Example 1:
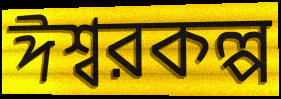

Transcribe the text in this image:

ঈশ্বরকল্প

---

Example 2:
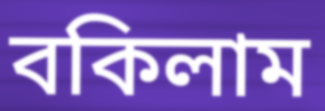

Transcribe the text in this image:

বকিলাম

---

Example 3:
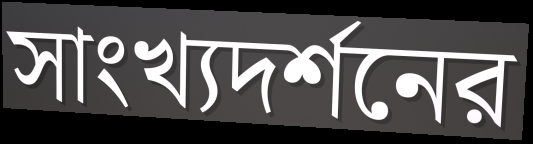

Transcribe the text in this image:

সাংখ্যদর্শনের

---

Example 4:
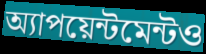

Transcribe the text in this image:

অ্যাপয়েন্টমেন্টও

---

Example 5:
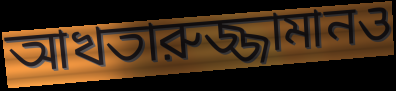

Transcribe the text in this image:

আখতারুজ্জামানও